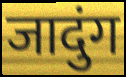
जादुंग